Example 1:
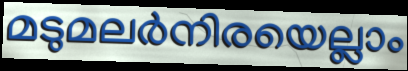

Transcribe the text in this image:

മടുമലർനിരയെല്ലാം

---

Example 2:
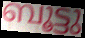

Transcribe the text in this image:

ബൂട്ടു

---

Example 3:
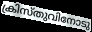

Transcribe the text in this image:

ക്രിസ്തുവിനോടു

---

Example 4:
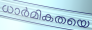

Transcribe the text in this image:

ധാർമികതയെ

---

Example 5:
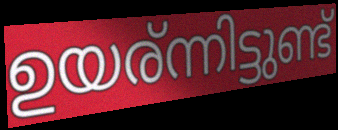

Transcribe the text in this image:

ഉയര്ന്നിട്ടുണ്ട്